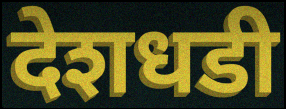
देशधडी